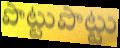
పొట్టుపొట్టు